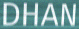
DHAN